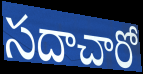
సదాచారో